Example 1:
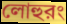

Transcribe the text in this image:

লোহুরং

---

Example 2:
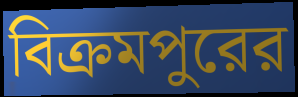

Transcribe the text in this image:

বিক্রমপুরের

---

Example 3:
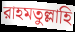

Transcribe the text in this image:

রাহমতুল্লাহি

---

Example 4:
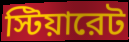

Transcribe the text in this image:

স্টিয়ারেট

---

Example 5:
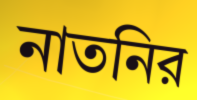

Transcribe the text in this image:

নাতনির